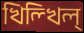
খিল্খিল্